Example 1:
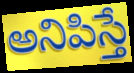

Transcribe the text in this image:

అనిపిస్తే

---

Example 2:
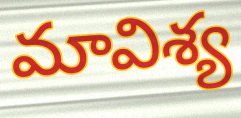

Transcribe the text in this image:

మావిశ్య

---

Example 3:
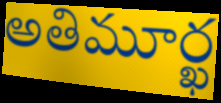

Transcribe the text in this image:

అతిమూర్ఖ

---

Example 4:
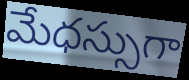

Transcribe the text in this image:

మేధస్సుగా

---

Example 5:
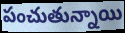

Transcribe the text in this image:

పంచుతున్నాయి